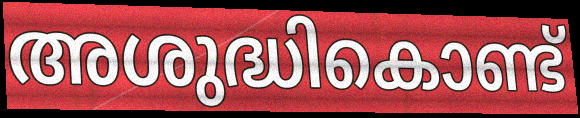
അശുദ്ധികൊണ്ട്